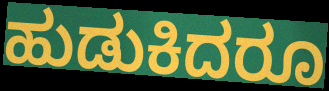
ಹುಡುಕಿದರೂ